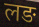
लङ